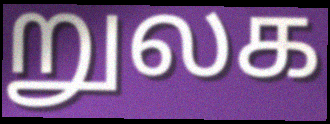
றுலக